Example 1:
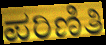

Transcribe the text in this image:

ಪರಿಣಿತಿ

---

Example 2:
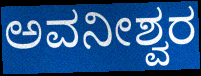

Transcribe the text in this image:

ಅವನೀಶ್ವರ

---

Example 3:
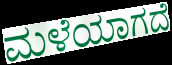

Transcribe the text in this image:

ಮಳೆಯಾಗದೆ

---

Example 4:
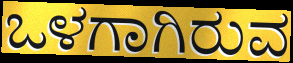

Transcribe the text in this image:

ಒಳಗಾಗಿರುವ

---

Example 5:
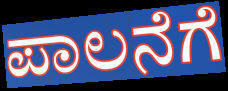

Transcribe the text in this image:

ಪಾಲನೆಗೆ